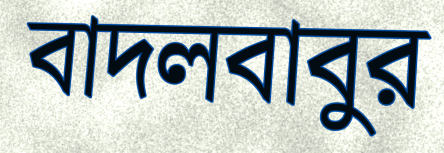
বাদলবাবুর